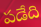
పడేది